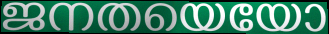
ജനതയെയോ